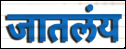
जातलंय